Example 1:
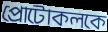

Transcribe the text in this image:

প্রোটোকলকে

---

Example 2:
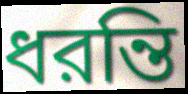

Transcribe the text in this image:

ধরন্তি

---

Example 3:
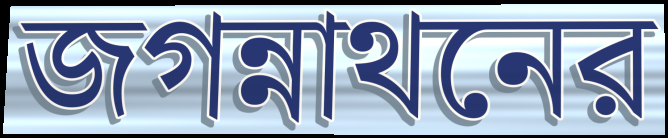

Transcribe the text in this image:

জগন্নাথনের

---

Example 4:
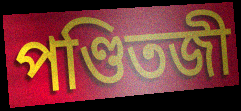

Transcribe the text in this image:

পণ্ডিতজী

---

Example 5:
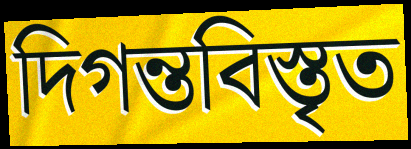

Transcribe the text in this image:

দিগন্তবিস্তৃত